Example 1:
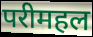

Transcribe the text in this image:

परीमहल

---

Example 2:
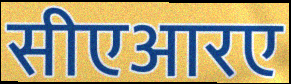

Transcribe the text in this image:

सीएआरए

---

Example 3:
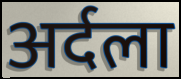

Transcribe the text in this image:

अर्दला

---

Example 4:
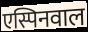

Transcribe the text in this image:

एस्पिनवाल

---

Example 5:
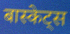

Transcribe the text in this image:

बास्केट्स